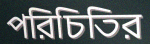
পরিচিতির